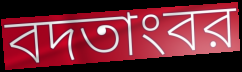
বদতাংবর